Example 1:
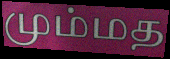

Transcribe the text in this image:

மும்மத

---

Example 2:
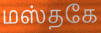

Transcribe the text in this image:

மஸ்தகே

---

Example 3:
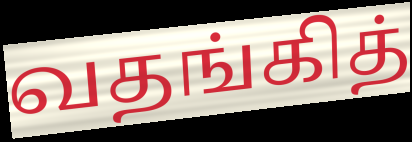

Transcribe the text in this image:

வதங்கித்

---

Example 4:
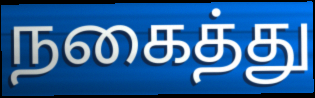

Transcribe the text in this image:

நகைத்து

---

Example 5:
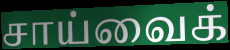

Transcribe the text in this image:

சாய்வைக்